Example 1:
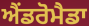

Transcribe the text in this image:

ਐਂਡਰੋਮੈਡਾ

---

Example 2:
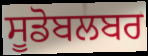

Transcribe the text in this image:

ਸੂਡੋਬਲਬਰ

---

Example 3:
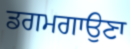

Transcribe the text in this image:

ਡਗਮਗਾਉਣਾ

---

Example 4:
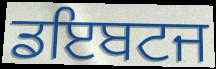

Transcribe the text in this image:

ਡਇਬਟਜ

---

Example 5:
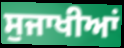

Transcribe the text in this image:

ਸੁਜਾਖੀਆਂ